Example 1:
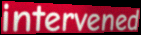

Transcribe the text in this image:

intervened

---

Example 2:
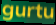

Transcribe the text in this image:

gurtu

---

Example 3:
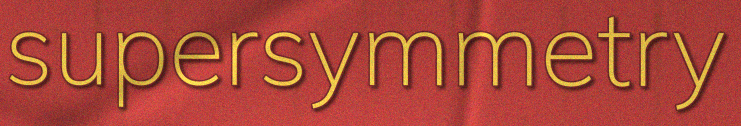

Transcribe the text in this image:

supersymmetry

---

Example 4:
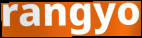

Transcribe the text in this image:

rangyo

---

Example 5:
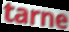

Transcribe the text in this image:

tarne